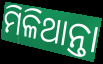
ମିଳିଥାନ୍ତା